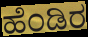
ಹೆಂಡಿರ